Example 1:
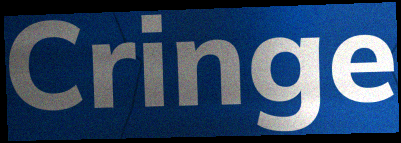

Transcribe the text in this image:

Cringe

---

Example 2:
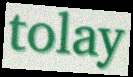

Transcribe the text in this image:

tolay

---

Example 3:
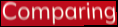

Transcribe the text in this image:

Comparing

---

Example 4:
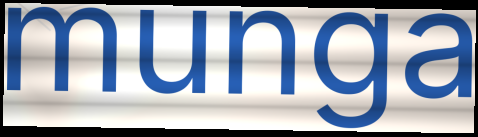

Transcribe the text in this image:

munga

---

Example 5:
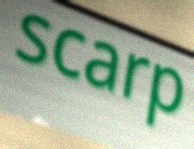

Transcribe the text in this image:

scarp